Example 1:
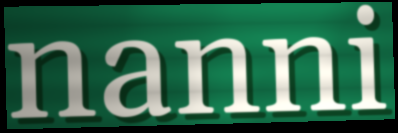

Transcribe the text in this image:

nanni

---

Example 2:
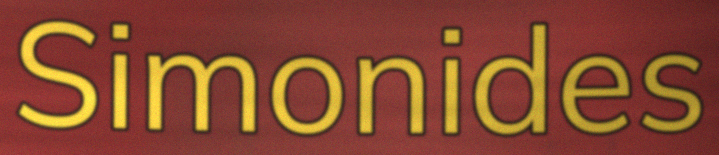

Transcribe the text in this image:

Simonides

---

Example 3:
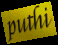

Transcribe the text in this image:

puthi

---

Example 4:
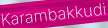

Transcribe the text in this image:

Karambakkudi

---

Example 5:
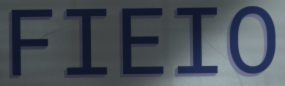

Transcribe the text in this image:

FIEIO